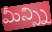
మీన్స్ని